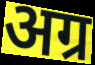
अग्र